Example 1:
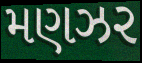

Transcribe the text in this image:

મણઝર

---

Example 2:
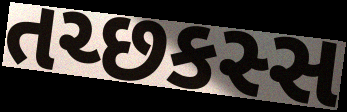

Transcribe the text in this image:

તચ્છકસ્સ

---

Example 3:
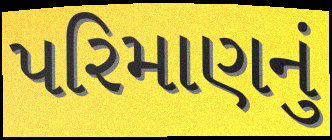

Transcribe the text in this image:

પરિમાણનું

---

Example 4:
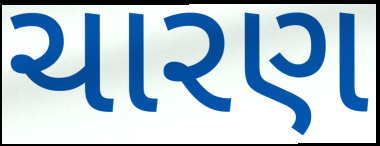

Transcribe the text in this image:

ચારણ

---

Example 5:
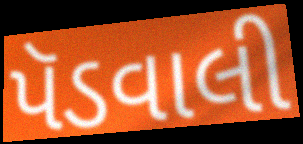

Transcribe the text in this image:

પૅડવાલી